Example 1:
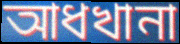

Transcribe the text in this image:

আধখানা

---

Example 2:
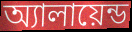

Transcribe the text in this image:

অ্যালায়েন্ড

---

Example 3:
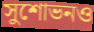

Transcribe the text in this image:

সুশোভনও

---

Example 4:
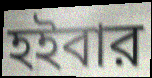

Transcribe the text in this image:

হইবার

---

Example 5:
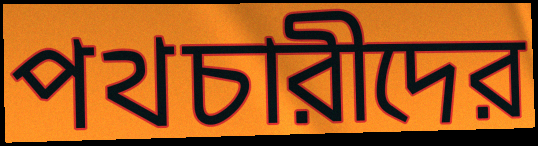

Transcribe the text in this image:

পথচারীদের